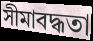
সীমাবদ্ধতা